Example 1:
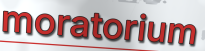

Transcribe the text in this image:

moratorium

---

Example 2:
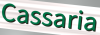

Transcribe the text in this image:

Cassaria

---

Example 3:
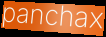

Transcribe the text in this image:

panchax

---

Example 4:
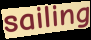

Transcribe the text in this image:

sailing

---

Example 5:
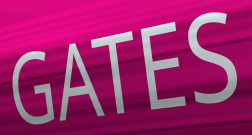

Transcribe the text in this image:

GATES